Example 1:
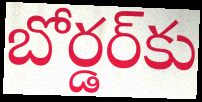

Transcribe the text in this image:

బోర్డర్‌కు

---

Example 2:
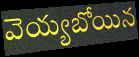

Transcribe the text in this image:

వెయ్యబోయిన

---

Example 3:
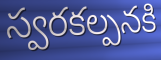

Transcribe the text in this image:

స్వరకల్పనకి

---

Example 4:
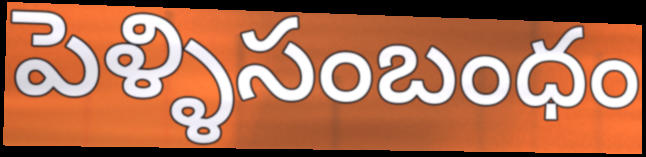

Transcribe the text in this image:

పెళ్ళిసంబంధం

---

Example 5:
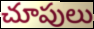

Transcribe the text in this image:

చూపులు